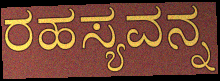
ರಹಸ್ಯವನ್ನ